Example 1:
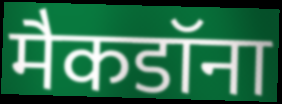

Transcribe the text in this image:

मैकडॉना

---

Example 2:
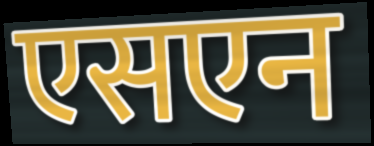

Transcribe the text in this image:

एसएन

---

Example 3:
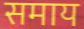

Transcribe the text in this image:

समाय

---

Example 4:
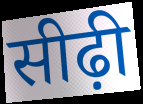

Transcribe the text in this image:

सीढ़ी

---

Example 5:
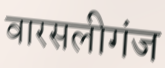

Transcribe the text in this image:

वारसलीगंज